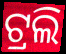
ଟ୍ରଲି